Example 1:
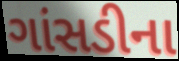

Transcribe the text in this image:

ગાંસડીના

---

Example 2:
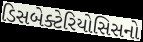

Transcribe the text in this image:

ડિસબેક્ટેરિયોસિસનો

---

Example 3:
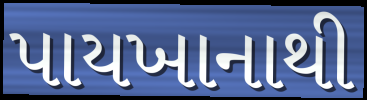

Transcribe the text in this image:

પાયખાનાથી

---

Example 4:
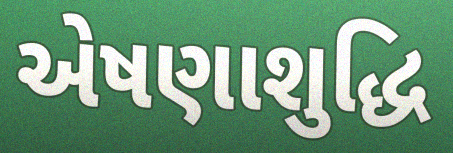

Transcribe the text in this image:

એષણાશુદ્ધિ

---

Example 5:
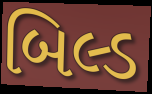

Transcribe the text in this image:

બિલ્ડ